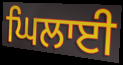
ਘਿਲਾਈ